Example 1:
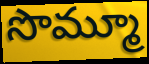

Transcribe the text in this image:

సొమ్మూ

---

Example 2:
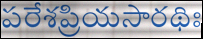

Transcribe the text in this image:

పరేశప్రియసారథిః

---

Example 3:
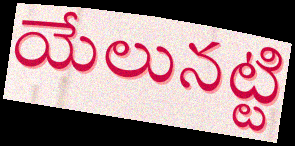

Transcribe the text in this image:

యేలునట్టి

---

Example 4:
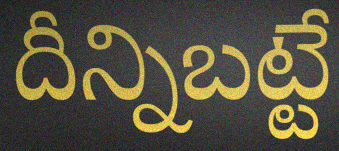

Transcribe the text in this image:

దీన్నిబట్టే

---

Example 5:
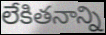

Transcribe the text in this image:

లేకితనాన్ని